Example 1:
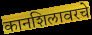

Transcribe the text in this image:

कानशिलावरचे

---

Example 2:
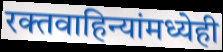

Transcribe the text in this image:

रक्तवाहिन्यांमध्येही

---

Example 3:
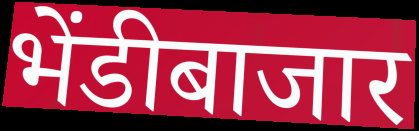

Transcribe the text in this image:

भेंडीबाजार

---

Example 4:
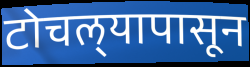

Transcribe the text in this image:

टोचल्यापासून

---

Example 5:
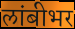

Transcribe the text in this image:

लांबीभर